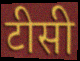
टीसी